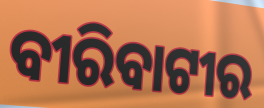
ବୀରିବାଟୀର